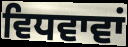
ਵਿਧਵਾਵਾਂ